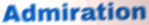
Admiration